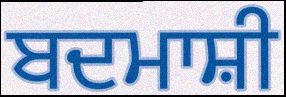
ਬਦਮਾਸ਼ੀ